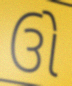
ઉો